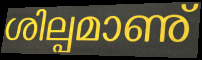
ശില്പമാണു്